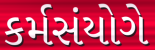
કર્મસંયોગે